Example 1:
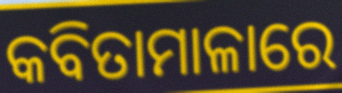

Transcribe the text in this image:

କବିତାମାଳାରେ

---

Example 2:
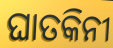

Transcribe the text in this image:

ଘାତକିନୀ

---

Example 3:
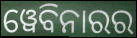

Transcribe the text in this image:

ୱେବିନାରର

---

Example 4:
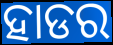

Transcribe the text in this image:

ହାଡର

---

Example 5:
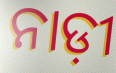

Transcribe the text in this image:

ନାଡ଼ୀ